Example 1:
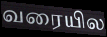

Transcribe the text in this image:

வரையில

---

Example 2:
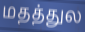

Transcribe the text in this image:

மதத்துல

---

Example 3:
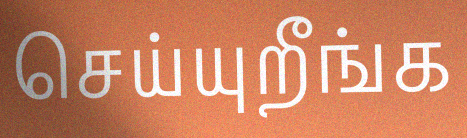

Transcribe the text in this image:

செய்யுறீங்க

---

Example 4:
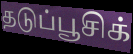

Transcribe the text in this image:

தடுப்பூசிக்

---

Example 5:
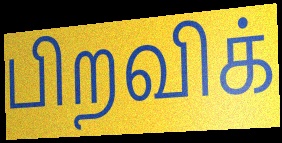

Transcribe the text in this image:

பிறவிக்